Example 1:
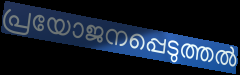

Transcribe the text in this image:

പ്രയോജനപ്പെടുത്തൽ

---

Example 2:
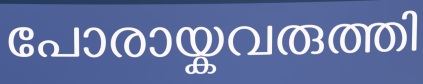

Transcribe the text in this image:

പോരായ്കവരുത്തി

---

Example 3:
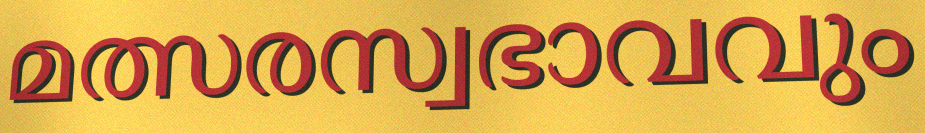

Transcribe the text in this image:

മത്സരസ്വഭാവവും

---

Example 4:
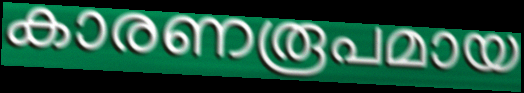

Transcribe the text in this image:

കാരണരൂപമായ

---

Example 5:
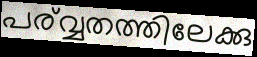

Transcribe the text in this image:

പര്വ്വതത്തിലേക്കു